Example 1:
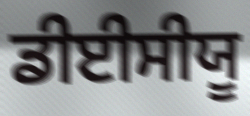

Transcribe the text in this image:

ਡੀਈਸੀਯੂ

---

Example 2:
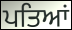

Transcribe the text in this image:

ਪਤਿਆਂ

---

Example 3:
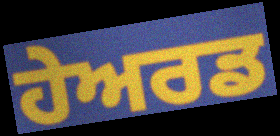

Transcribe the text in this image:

ਹੇਅਰਡ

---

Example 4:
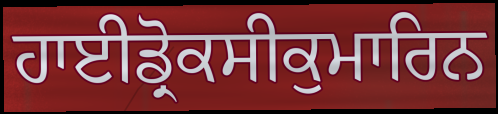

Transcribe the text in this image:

ਹਾਈਡ੍ਰੋਕਸੀਕੁਮਾਰਿਨ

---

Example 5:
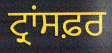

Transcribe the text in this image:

ਟ੍ਰਾਂਸਫ਼ਰ